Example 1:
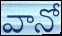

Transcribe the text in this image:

వానో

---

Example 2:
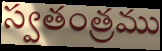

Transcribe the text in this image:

స్వతంత్రము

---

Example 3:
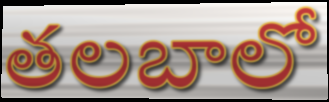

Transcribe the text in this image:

తలబాలో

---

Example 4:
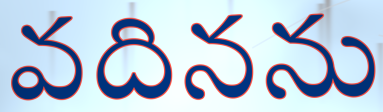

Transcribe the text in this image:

వదినను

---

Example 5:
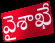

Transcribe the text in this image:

వైశాఖే